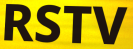
RSTV